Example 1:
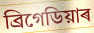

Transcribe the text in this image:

ব্ৰিগেডিয়াৰ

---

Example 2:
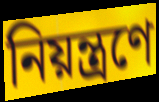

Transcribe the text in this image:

নিয়ন্ত্ৰণে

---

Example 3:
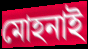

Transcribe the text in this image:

মোহনাই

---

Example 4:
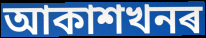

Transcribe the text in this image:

আকাশখনৰ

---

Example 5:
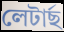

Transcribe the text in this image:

লেটাৰ্ছ